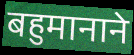
बहुमानाने